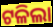
ଟଳିଲା